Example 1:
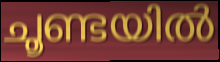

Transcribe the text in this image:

ചൂണ്ടയിൽ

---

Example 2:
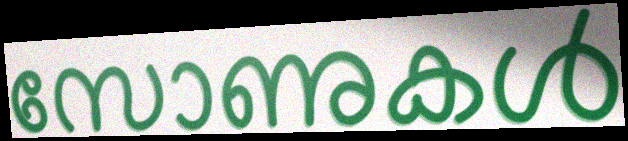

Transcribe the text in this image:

സോണുകൾ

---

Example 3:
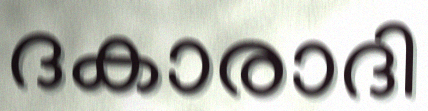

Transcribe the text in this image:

ദകാരാദി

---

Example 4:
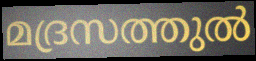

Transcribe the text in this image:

മദ്രസത്തുൽ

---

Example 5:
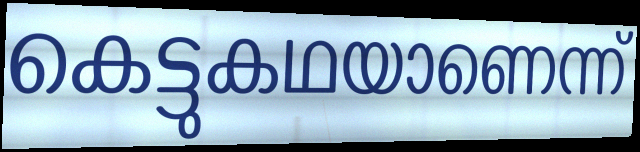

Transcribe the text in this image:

കെട്ടുകഥയാണെന്ന്